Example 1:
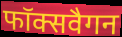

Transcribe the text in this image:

फॉक्सवैगन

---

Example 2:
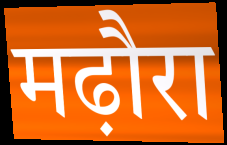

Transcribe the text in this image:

मढ़ौरा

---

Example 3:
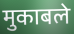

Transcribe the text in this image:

मुकाबले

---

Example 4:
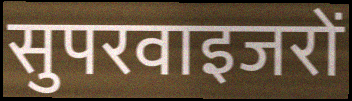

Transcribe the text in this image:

सुपरवाइजरों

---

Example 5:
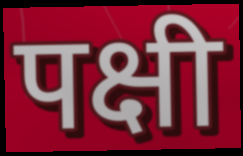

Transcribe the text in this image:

पक्षी